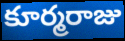
కూర్మరాజు